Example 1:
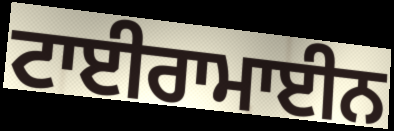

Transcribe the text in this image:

ਟਾਈਰਾਮਾਈਨ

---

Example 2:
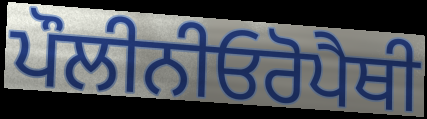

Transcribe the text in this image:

ਪੌਲੀਨੀਓਰੋਪੈਥੀ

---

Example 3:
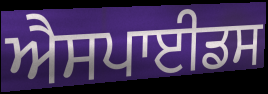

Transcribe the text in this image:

ਐਸਪਾਈਡਸ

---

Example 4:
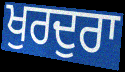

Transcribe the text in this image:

ਖੁਰਦੁਰਾ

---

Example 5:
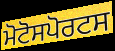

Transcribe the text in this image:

ਮੋਟੋਸਪੋਰਟਸ